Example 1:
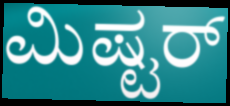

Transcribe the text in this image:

ಮಿಷ್ಟರ್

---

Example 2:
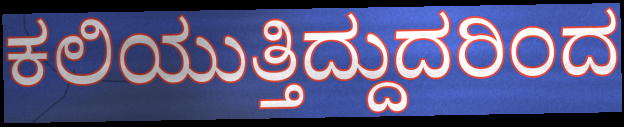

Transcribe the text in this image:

ಕಲಿಯುತ್ತಿದ್ದುದರಿಂದ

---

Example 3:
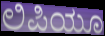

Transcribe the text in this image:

ಲಿಪಿಯೂ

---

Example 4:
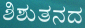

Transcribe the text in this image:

ಶಿಶುತನದ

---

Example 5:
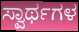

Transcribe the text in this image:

ಸ್ವಾರ್ಥಗಳ